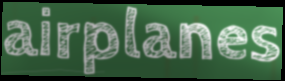
airplanes